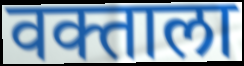
वक्ताला